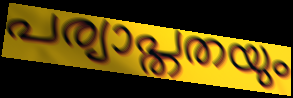
പര്യാപ്തതയും